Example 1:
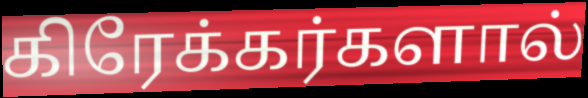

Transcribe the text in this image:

கிரேக்கர்களால்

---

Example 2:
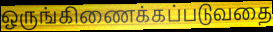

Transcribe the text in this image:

ஒருங்கிணைக்கப்படுவதை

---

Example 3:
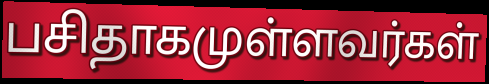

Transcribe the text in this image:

பசிதாகமுள்ளவர்கள்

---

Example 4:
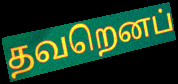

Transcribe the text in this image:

தவறெனப்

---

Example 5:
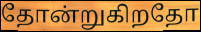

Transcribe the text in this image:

தோன்றுகிறதோ